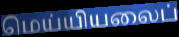
மெய்யியலைப்